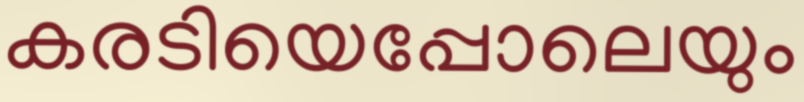
കരടിയെപ്പോലെയും